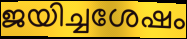
ജയിച്ചശേഷം